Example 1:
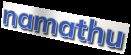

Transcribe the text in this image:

namathu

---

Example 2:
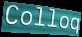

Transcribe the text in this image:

Colloq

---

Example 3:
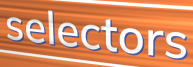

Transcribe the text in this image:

selectors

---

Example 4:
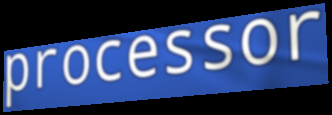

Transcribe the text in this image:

processor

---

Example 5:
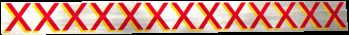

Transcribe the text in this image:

xxxxxxxxxxxxx